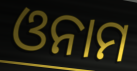
ଓନାମ